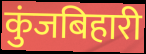
कुंजबिहारी